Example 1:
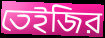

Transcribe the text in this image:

তেইজির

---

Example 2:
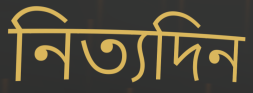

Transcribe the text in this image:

নিত্যদিন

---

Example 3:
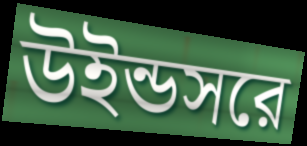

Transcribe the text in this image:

উইন্ডসরে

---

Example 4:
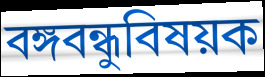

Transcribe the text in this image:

বঙ্গবন্ধুবিষয়ক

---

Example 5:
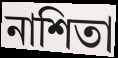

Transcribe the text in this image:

নাশিতা